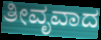
ತೀವೃವಾದ